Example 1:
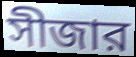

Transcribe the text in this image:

সীজার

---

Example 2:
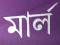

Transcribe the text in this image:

মার্ল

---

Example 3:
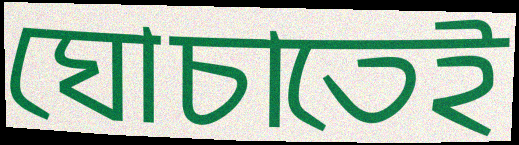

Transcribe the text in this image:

ঘোচাতেই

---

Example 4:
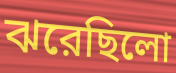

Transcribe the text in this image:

ঝরেছিলো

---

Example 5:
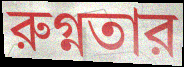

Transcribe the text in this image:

রুগ্নতার